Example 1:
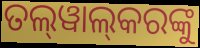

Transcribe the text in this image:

ତଲ୍‌ୱାଲ୍‌କରଙ୍କୁ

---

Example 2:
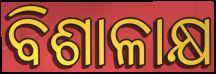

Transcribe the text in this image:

ବିଶାଳାକ୍ଷ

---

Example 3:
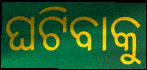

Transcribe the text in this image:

ଘଟିବାକୁ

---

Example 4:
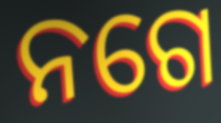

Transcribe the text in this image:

ନଗେ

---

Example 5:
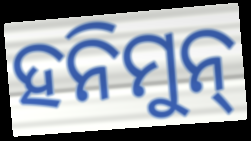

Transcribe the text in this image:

ହନିମୁନ୍